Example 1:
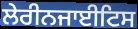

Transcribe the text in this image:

ਲੇਰੀਨਜਾਈਟਿਸ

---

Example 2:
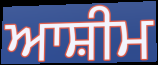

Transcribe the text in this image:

ਆਸ਼ੀਮ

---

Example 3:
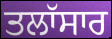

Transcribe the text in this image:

ਤਲਾੱਸਾਰ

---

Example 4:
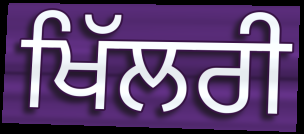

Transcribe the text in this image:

ਖਿੱਲਰੀ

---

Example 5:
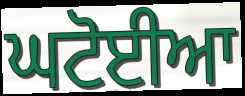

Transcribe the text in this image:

ਘਟੋਈਆ